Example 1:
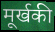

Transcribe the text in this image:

मूर्खकी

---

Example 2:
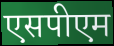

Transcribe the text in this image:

एसपीएम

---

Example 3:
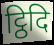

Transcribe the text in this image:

ट्ठिदि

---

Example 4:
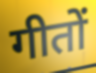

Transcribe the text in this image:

गीतों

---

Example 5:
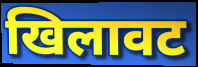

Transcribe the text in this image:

खिलावट